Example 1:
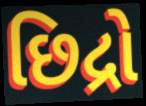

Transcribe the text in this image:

છિદ્રો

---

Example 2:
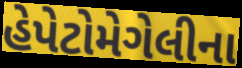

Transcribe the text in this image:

હેપેટોમેગેલીના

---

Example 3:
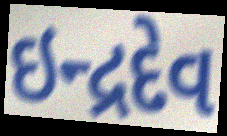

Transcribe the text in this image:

ઇન્દ્રદેવ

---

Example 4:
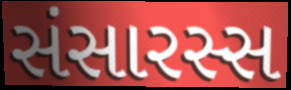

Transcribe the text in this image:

સંસારસ્સ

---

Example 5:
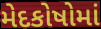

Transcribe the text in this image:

મેદકોષોમાં